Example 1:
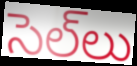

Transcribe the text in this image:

సెల్‌లు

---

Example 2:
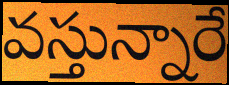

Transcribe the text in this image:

వస్తున్నారే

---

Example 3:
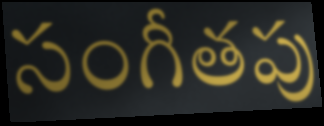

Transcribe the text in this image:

సంగీతపు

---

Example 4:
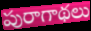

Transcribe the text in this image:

పురాగాథలు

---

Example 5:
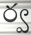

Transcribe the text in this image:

ర్వ